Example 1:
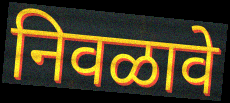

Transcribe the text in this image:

निवळावे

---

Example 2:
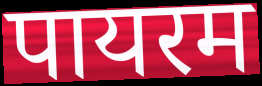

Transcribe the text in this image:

पायरम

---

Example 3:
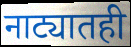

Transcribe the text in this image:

नाट्यातही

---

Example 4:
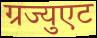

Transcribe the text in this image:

ग्रज्युएट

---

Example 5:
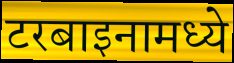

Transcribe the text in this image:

टरबाइनामध्ये